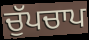
ਚੁੱਪਚਾਪ